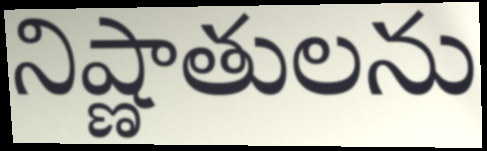
నిష్ణాతులను